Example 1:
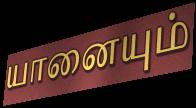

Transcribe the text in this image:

யானையும்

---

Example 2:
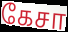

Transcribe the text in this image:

கேசா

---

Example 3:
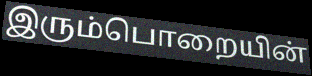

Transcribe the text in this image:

இரும்பொறையின்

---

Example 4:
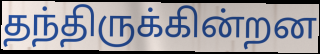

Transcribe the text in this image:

தந்திருக்கின்றன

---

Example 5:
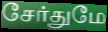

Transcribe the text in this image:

சேர்துமே